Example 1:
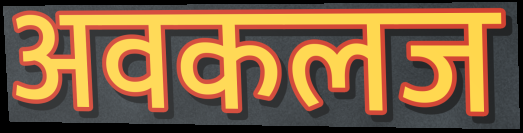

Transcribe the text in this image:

अवकलज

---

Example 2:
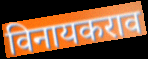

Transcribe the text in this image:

विनायकराव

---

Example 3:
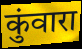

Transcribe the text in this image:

कुंवारा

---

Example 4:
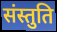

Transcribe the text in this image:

संस्तुति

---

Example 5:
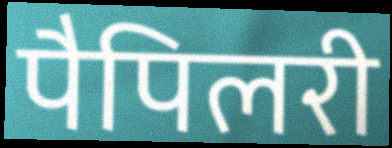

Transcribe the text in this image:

पैपिलरी